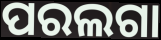
ପରଲଗା